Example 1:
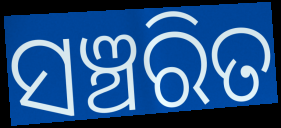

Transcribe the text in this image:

ସଞ୍ଚରିତ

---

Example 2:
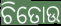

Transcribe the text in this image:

ଚିତୋଉ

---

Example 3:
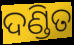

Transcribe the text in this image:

ଦଣ୍ଡିତ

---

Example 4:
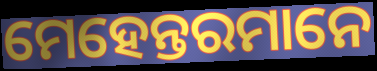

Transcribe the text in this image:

ମେହେନ୍ତରମାନେ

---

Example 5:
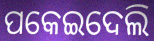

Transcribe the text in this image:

ପକେଇଦେଲି